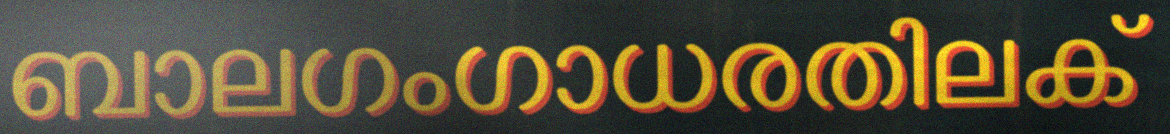
ബാലഗംഗാധരതിലക്